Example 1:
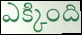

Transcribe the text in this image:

ఎక్కింది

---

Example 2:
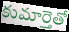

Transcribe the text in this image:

కుమార్తెతో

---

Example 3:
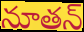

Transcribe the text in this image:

నూతన్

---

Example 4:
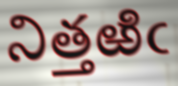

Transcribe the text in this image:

నిత్తఱిఁ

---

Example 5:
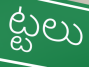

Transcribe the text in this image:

ట్టలు